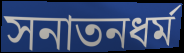
সনাতনধর্ম